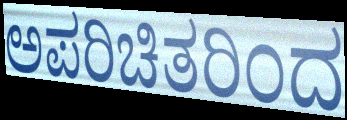
ಅಪರಿಚಿತರಿಂದ